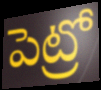
పెట్రో